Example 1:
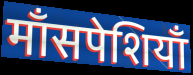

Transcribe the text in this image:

माँसपेशियाँ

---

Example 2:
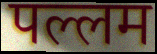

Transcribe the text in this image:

पल्लम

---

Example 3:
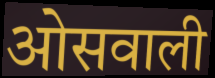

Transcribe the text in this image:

ओसवाली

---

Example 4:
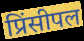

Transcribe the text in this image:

प्रिंसीपल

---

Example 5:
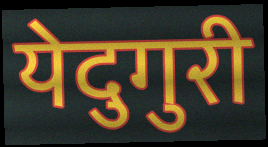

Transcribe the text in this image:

येदुगुरी